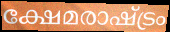
ക്ഷേമരാഷ്ട്രം